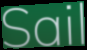
Sail